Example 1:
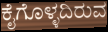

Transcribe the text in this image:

ಕೈಗೊಳ್ಳದಿರುವ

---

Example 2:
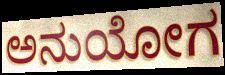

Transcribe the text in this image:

ಅನುಯೋಗ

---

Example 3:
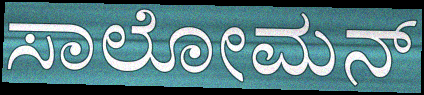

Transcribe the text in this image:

ಸಾಲೋಮನ್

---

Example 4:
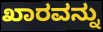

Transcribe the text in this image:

ಖಾರವನ್ನು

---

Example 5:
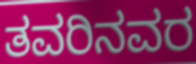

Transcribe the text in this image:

ತವರಿನವರ